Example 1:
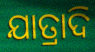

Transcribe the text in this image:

ଯାତ୍ରାଦି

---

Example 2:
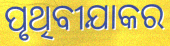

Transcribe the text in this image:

ପୃଥିବୀଯାକର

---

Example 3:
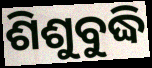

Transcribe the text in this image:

ଶିଶୁବୁଦ୍ଧି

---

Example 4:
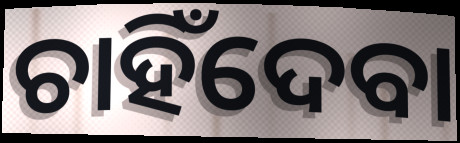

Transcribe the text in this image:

ଚାହିଁଦେବା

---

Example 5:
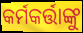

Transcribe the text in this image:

କର୍ମକର୍ତ୍ତାଙ୍କୁ